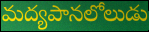
మద్యపానలోలుడు